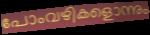
പോംവഴികളൊന്നും